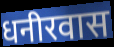
धनीरवास